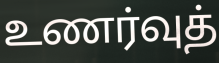
உணர்வுத்